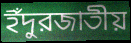
ইঁদুরজাতীয়